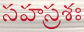
సహస్రశః